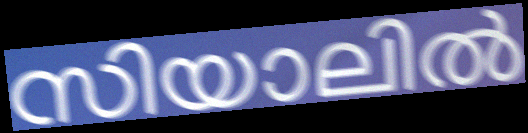
സിയാലിൽ